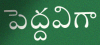
పెద్దవిగా